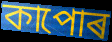
কাপোৰ